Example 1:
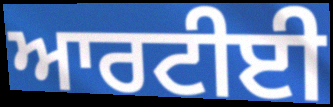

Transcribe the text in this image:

ਆਰਟੀਈ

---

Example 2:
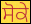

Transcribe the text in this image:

ਸੋਕੇ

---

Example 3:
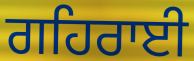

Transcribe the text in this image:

ਗਹਿਰਾਈ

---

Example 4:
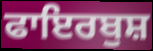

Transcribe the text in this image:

ਫਾਇਰਬੁਸ਼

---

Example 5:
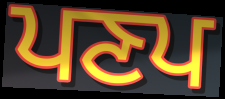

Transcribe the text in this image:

ਪਣਪ